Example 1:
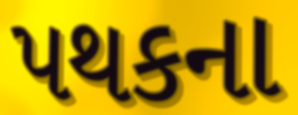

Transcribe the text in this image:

પથકના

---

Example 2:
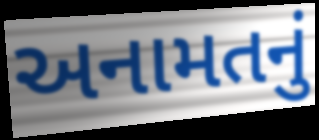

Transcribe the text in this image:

અનામતનું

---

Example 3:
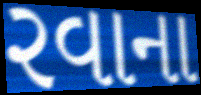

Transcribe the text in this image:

રવાના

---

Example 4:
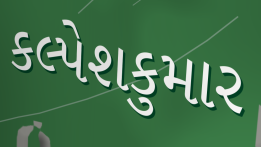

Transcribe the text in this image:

કલ્પેશકુમાર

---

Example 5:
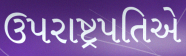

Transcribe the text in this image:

ઉપરાષ્ટ્રપતિએ